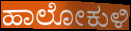
ಹಾಲೋಕುಳಿ